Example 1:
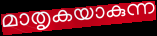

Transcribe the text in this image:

മാതൃകയാകുന്ന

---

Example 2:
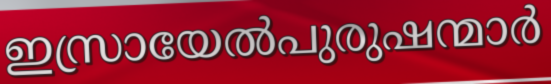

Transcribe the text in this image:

ഇസ്രായേൽപുരുഷന്മാർ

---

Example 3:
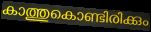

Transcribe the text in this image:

കാത്തുകൊണ്ടിരിക്കും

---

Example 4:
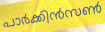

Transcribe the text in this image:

പാർക്കിൻസൺ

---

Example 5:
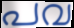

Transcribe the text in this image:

പവ